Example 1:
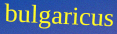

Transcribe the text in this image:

bulgaricus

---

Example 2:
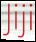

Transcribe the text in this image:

Jiji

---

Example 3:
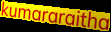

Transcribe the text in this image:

kumararaitha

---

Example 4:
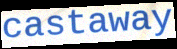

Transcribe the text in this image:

castaway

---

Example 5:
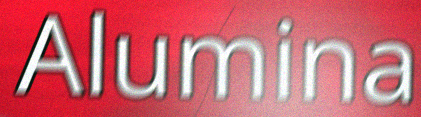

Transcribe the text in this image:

Alumina